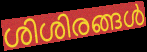
ശിശിരങ്ങൾ